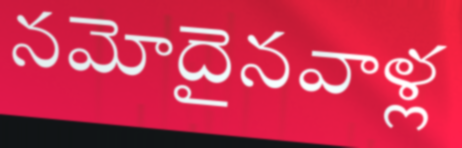
నమోదైనవాళ్ల